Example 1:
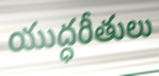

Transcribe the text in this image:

యుద్ధరీతులు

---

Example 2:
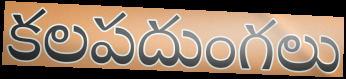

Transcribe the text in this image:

కలపదుంగలు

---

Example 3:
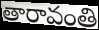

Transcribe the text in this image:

తారావంతి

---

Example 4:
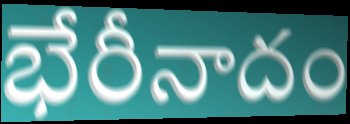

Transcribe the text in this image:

భేరీనాదం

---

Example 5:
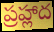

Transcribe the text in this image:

ప్రహ్లాద